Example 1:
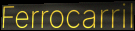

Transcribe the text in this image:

Ferrocarril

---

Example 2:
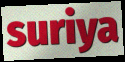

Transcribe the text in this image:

suriya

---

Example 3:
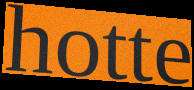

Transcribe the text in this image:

hotte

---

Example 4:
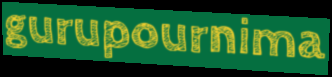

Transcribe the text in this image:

gurupournima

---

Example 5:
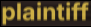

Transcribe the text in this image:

plaintiff